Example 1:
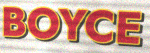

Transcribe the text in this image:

BOYCE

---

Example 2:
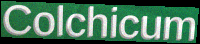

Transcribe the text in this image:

Colchicum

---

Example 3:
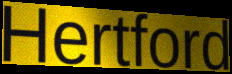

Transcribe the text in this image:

Hertford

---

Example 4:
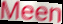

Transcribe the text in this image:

Meen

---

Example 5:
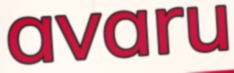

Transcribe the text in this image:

avaru